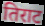
तिराट